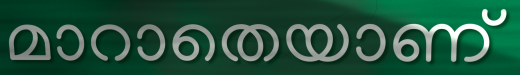
മാറാതെയാണ്